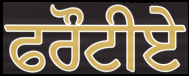
ਫਰੌਟੀਏ